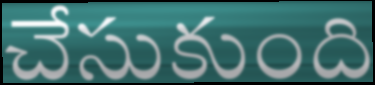
చేసుకుంది